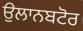
ਉਲਾਨਬਟੋਰ